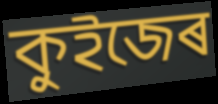
কুইজেৰ